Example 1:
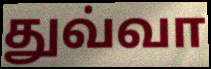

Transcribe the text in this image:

துவ்வா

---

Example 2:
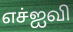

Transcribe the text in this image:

எச்ஐவி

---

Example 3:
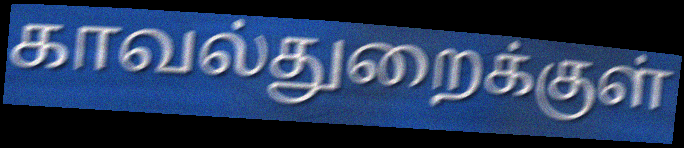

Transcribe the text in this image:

காவல்துறைக்குள்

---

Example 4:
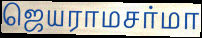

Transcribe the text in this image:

ஜெயராமசர்மா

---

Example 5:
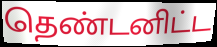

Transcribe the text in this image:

தெண்டனிட்ட